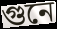
গুনে